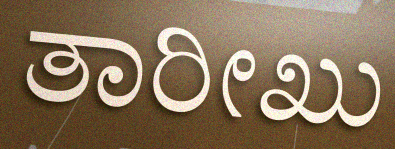
ತಾರೀಖು